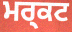
ਮਰ੍ਕਟ